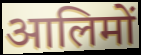
आलिमों